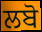
ਲਬੋ